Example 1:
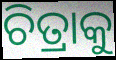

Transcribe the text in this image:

ଚିତ୍ରାକୁ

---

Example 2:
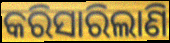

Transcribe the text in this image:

କରିସାରିଲାଣି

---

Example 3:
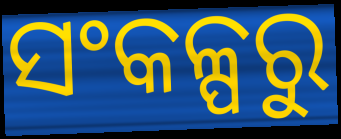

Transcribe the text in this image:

ସଂକଳ୍ପରୁ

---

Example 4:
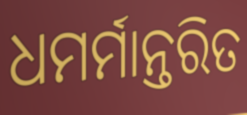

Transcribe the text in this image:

ଧମର୍ମାନ୍ତରିତ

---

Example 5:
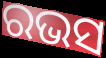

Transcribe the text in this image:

ରଭସ